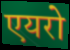
एयरो